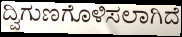
ದ್ವಿಗುಣಗೊಳಿಸಲಾಗಿದೆ